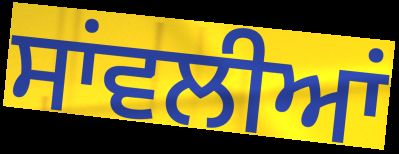
ਸਾਂਵਲੀਆਂ